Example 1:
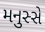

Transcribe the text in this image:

મનુસ્સે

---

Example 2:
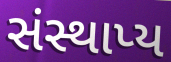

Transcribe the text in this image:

સંસ્થાપ્ય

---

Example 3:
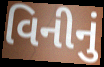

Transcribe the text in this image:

વિનીનું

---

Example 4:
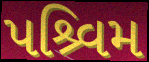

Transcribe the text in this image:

પશ્ર્વિમ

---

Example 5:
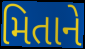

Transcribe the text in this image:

મિતાને